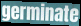
germinate